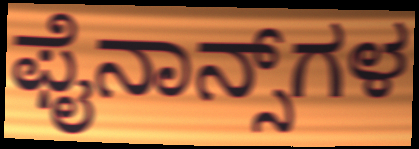
ಫೈನಾನ್ಸ್‌ಗಳ